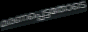
മരണപ്പെട്ടതോടെ